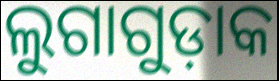
ଲୁଗାଗୁଡ଼ାକ